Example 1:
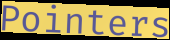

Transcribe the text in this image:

Pointers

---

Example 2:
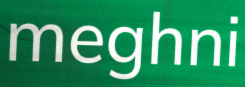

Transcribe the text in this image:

meghni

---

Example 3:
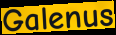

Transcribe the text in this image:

Galenus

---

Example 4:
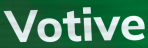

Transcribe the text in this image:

Votive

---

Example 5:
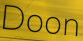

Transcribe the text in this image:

Doon